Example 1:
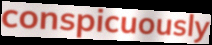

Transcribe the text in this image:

conspicuously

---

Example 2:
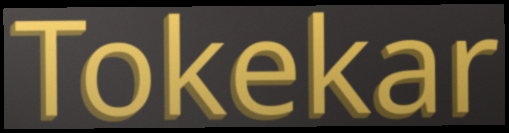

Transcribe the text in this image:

Tokekar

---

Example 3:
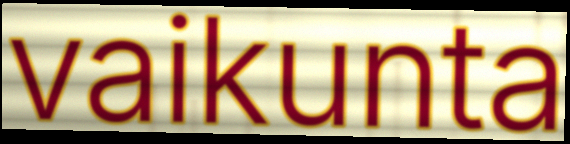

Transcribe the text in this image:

vaikunta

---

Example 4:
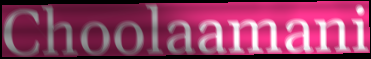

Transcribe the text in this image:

Choolaamani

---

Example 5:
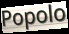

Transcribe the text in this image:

Popolo